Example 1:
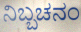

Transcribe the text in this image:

ನಿಬ್ಬಚನಂ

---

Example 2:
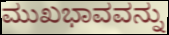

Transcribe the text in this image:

ಮುಖಭಾವವನ್ನು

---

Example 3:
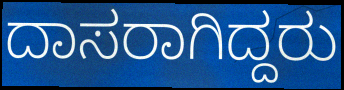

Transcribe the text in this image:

ದಾಸರಾಗಿದ್ದರು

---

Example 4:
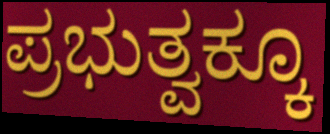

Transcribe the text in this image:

ಪ್ರಭುತ್ವಕ್ಕೂ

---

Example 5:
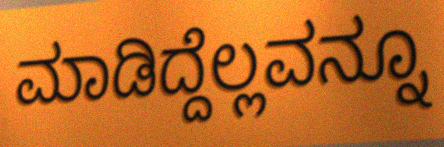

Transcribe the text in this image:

ಮಾಡಿದ್ದೆಲ್ಲವನ್ನೂ